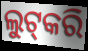
ଲୁଟ୍‍କରି